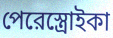
পেরেস্ত্রোইকা